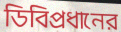
ডিবিপ্রধানের